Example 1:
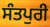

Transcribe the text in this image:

ਸੰਤਪੁਰੀ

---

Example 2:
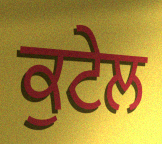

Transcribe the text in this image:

ਕੁਟੇਲ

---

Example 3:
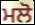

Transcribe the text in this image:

ਮਲੋ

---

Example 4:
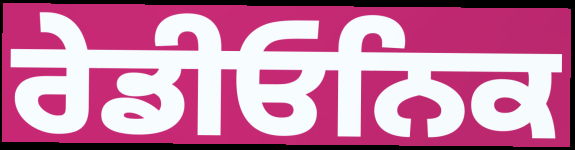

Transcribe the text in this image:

ਰੇਡੀਓਨਿਕ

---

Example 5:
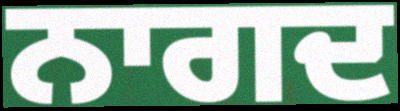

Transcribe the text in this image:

ਨਾਗਦ